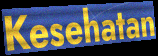
Kesehatan